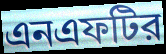
এনএফটির